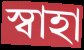
স্বাহা